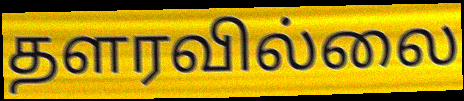
தளரவில்லை